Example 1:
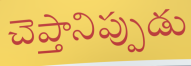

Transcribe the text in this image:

చెప్తానిప్పుడు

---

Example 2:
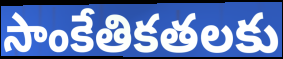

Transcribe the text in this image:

సాంకేతికతలకు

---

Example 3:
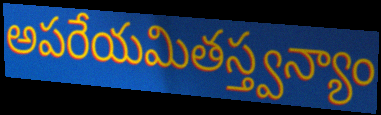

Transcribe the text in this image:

అపరేయమితస్త్వన్యాం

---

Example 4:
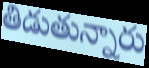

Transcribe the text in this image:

తిడుతున్నారు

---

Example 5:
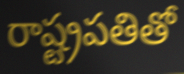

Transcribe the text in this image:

రాష్ట్రపతితో